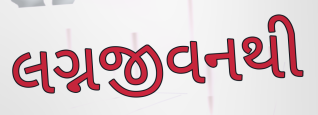
લગ્નજીવનથી